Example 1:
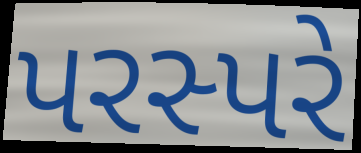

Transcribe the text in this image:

પરસ્પરે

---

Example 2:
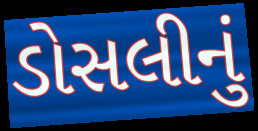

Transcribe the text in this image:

ડોસલીનું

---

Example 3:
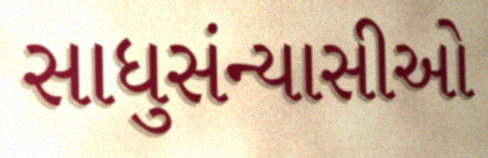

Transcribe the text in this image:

સાધુસંન્યાસીઓ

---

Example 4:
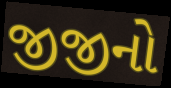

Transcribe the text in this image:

જીજીનો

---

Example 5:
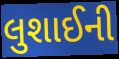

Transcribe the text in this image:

લુશાઈની